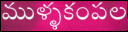
ముళ్ళకంపల